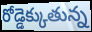
రోడ్డెక్కుతున్న